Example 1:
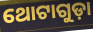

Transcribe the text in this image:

ଥୋଟାଗୁଡ଼ା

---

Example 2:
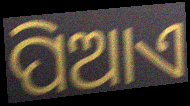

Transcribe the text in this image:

ପିଆଏ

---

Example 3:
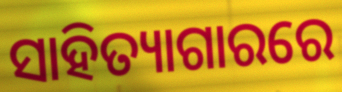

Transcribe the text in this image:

ସାହିତ୍ୟାଗାରରେ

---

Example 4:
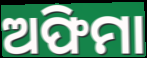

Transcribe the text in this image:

ଅଫିମା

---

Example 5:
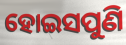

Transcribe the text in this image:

ହୋଇସପୁଣି